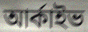
আর্কাইভ